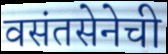
वसंतसेनेची